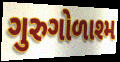
ગુરુગોળાશ્મ